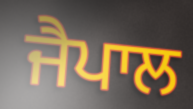
ਜੈਪਾਲ